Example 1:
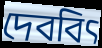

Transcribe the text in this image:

দেববিৎ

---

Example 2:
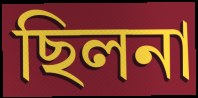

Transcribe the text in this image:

ছিলনা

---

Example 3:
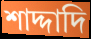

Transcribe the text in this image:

শাদ্দাদি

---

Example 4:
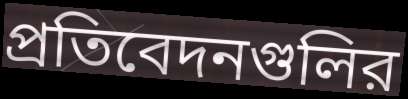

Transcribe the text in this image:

প্রতিবেদনগুলির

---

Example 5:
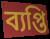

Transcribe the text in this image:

ব্যপ্তি